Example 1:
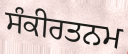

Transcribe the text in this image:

ਸੰਕੀਰਤਨਮ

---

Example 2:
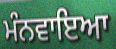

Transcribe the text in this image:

ਮੰਨਵਾਇਆ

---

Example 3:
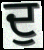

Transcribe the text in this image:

ਦੁ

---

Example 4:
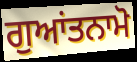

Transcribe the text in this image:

ਗੁਆਂਤਨਾਮੋ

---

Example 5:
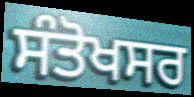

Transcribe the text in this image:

ਸੰਤੋਖਸਰ